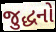
જુદ્ધનો